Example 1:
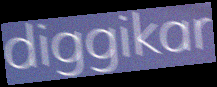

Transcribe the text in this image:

diggikar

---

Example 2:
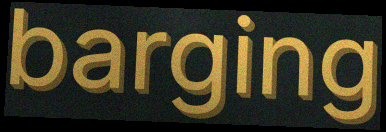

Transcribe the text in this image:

barging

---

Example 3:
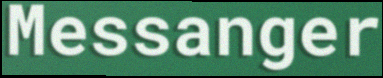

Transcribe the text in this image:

Messanger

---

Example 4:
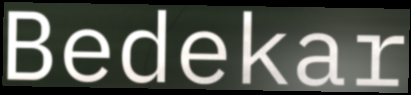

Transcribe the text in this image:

Bedekar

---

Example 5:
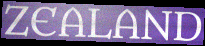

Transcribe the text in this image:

ZEALAND